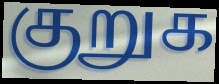
குறுக